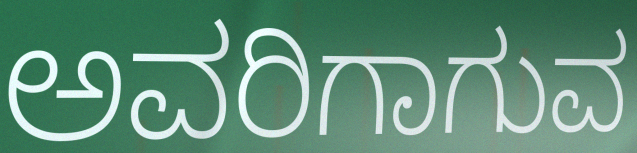
ಅವರಿಗಾಗುವ